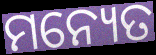
ମନ୍ୟେତ